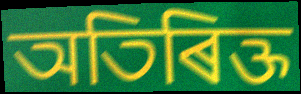
অতিৰিক্ত